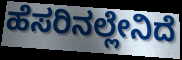
ಹೆಸರಿನಲ್ಲೇನಿದೆ